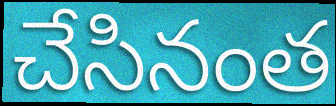
చేసినంత